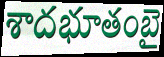
శాదభూతంబై